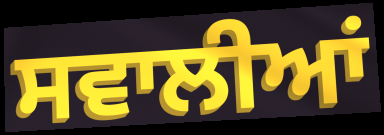
ਸਵਾਲੀਆਂ